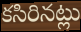
కసిరినట్లు